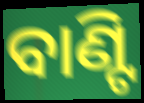
ବାଣ୍ଟି